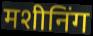
मशीनिंग